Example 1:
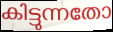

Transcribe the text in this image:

കിട്ടുന്നതോ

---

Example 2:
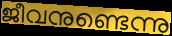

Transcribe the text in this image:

ജീവനുണ്ടെന്നു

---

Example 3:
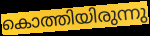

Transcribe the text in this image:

കൊത്തിയിരുന്നു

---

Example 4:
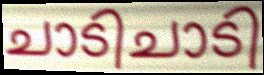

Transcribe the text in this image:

ചാടിചാടി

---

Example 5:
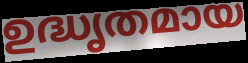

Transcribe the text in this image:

ഉദ്ധൃതമായ